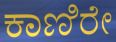
ಕಾಣಿರೇ